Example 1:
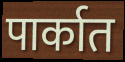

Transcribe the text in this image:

पार्कात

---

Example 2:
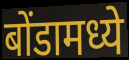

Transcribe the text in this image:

बोंडामध्ये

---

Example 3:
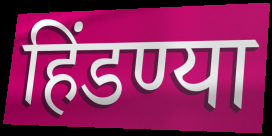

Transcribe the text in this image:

हिंडण्या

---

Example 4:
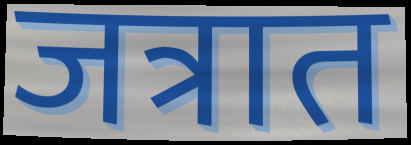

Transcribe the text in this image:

जत्रात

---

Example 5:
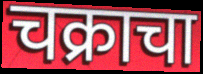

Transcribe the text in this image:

चक्राचा